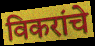
विकरांचे